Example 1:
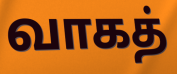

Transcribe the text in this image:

வாகத்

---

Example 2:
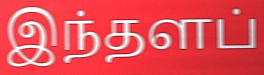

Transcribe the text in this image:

இந்தளப்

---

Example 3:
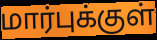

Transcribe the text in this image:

மார்புக்குள்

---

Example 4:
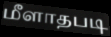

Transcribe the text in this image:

மீளாதபடி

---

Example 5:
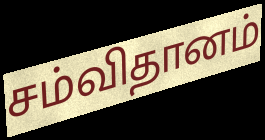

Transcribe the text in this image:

சம்விதானம்